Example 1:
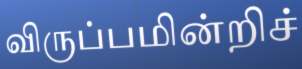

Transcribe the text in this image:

விருப்பமின்றிச்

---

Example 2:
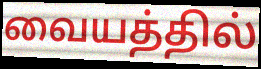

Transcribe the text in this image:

வையத்தில்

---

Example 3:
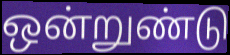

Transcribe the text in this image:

ஒன்றுண்டு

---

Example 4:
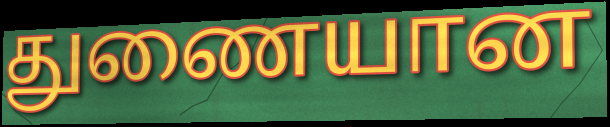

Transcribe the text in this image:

துணையான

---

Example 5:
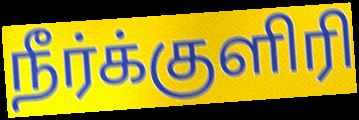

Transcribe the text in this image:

நீர்க்குளிரி